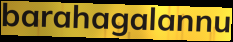
barahagalannu